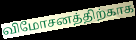
விமோசனத்திற்காக